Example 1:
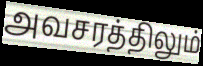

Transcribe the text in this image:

அவசரத்திலும்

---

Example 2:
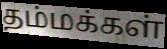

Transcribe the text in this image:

தம்மக்கள்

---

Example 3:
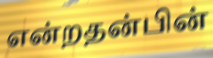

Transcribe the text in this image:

என்றதன்பின்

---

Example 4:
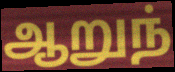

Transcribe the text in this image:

ஆறுந்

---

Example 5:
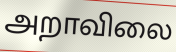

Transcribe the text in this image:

அறாவிலை